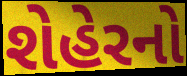
શેહેરનો